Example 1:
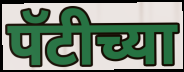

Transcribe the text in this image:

पॅटीच्या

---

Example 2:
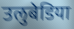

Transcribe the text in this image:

उलुबेडिया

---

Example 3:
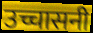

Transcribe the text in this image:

उच्चासनी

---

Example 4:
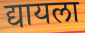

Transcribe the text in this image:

द्यायला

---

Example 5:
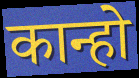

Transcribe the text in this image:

कान्हो